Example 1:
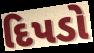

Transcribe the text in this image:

દિપડો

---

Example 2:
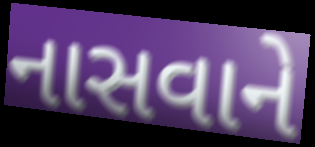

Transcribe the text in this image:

નાસવાને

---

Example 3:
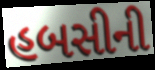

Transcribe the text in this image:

હબસીની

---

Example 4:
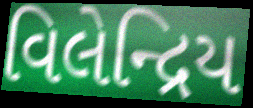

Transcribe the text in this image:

વિલેન્દ્રિય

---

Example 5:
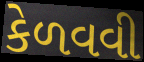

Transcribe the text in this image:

કેળવવી